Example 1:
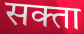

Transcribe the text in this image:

सक्ता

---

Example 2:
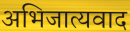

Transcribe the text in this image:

अभिजात्यवाद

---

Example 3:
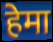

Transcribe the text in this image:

हेमा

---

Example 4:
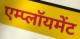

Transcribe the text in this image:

एम्प्लॉयमेंट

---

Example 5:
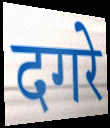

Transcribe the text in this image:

दगरे